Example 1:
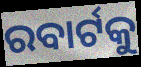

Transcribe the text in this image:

ରବାର୍ଟକୁ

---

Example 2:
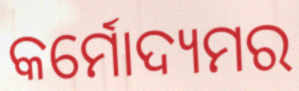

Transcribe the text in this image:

କର୍ମୋଦ୍ୟମର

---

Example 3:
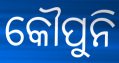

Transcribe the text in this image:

କୌପୁନି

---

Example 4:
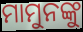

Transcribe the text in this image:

ମାମୁନଙ୍କୁ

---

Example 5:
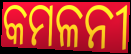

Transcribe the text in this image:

କମଳନୀ